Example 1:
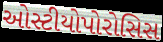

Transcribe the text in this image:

ઓસ્ટીયોપોરોસિસ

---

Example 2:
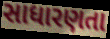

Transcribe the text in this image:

સાધારણતા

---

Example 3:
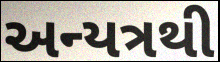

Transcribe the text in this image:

અન્યત્રથી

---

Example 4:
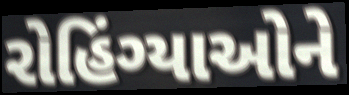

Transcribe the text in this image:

રોહિંગ્યાઓને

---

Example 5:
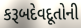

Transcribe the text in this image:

કરૂબદેવદૂતોની